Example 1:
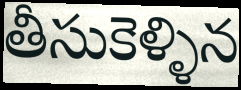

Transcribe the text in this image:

తీసుకెళ్ళిన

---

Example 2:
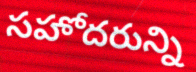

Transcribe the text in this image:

సహోదరున్ని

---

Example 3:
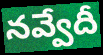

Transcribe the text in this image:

నవ్వేదీ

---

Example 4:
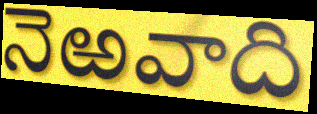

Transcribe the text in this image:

నెఱవాది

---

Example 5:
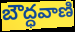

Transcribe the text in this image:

బౌద్ధవాణి